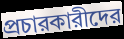
প্রচারকারীদের